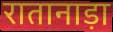
रातानाड़ा